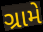
ગ્રામે